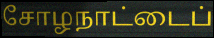
சோழநாட்டைப்